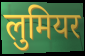
लुमियर